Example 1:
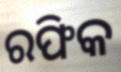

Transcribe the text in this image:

ରଫିକ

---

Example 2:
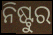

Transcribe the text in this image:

ନିଷ୍ଟୁର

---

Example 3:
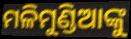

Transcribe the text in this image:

ମଳିମୁଣ୍ଡିଆଙ୍କୁ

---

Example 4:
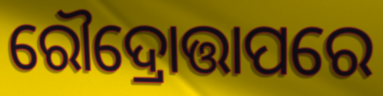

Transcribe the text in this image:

ରୌଦ୍ରୋତ୍ତାପରେ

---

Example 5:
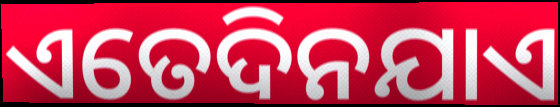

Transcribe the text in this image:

ଏତେଦିନଯାଏ